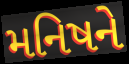
મનિષને